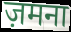
ज़मना